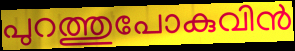
പുറത്തുപോകുവിൻ